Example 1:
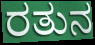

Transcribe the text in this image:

ರತುನ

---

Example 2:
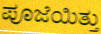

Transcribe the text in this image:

ಪೂಜೆಯಿತ್ತು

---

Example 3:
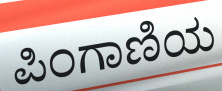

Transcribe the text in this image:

ಪಿಂಗಾಣಿಯ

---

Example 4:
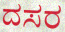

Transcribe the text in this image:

ದಸರ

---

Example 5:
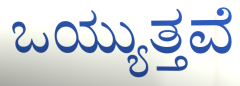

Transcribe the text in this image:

ಒಯ್ಯುತ್ತವೆ